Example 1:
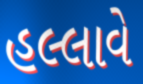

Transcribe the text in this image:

હલ્લાવે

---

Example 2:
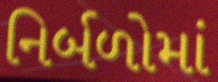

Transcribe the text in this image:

નિર્બળોમાં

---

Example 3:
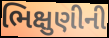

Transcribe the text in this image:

ભિક્ષુણીની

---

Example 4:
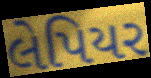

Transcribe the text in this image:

લેપિયર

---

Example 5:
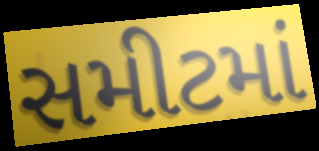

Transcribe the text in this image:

સમીટમાં